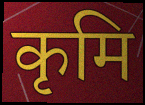
कृमि